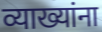
व्याख्यांना